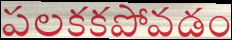
పలకకపోవడం